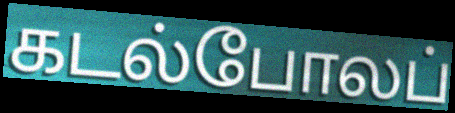
கடல்போலப்